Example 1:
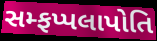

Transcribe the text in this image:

સમ્ફપ્પલાપોતિ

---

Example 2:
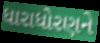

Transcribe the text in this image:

ધારાધોરણને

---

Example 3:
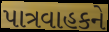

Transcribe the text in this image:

પાત્રવાહકને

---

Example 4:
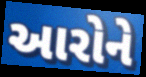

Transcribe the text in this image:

આરોને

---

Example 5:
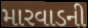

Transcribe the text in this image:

મારવાડની